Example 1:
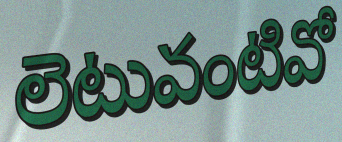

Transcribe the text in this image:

లెటువంటివో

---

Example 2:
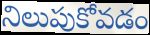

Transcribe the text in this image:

నిలుపుకోవడం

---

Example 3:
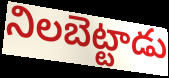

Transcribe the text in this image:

నిలబెట్టాడు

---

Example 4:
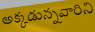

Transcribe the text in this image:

అక్కడున్నవారిని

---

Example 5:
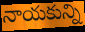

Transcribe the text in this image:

నాయకున్ని